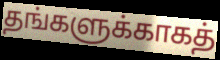
தங்களுக்காகத்